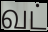
வட்